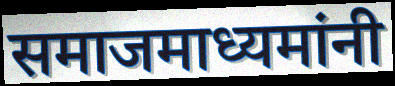
समाजमाध्यमांनी